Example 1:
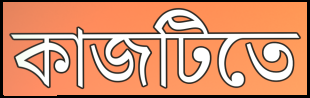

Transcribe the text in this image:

কাজটিতে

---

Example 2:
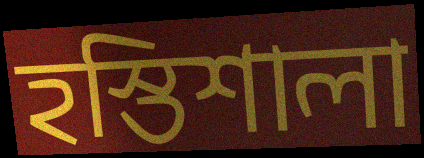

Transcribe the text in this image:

হস্তিশালা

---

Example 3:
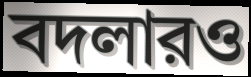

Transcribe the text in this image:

বদলারও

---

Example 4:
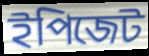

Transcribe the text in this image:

ইপিজেট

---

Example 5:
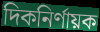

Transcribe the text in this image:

দিকনির্ণায়ক